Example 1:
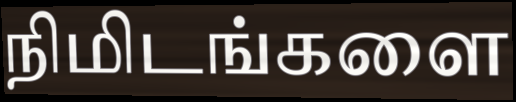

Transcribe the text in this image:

நிமிடங்களை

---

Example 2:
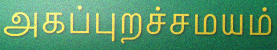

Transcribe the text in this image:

அகப்புறச்சமயம்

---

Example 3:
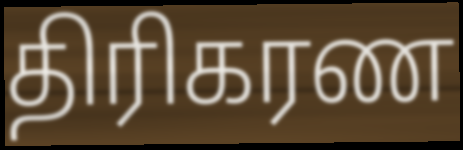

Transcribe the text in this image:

திரிகரண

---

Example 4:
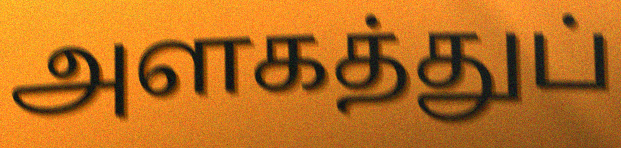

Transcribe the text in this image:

அளகத்துப்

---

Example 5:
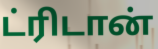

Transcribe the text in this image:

ட்ரிடான்